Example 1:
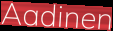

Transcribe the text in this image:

Aadinen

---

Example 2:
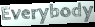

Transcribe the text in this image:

Everybody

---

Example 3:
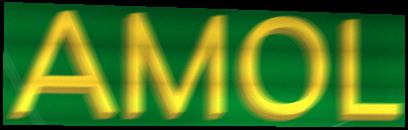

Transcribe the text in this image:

AMOL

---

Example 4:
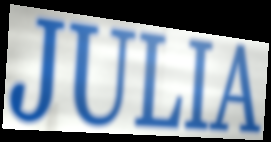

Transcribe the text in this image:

JULIA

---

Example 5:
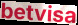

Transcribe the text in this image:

betvisa